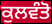
ਕੁਲਵੰਤੋ